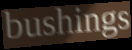
bushings